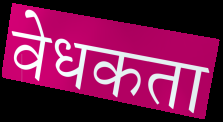
वेधकता